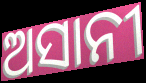
ଅସାନୀ